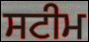
ਸਟੀਮ